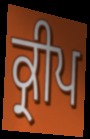
ਕ੍ਰੀਪ